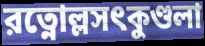
রত্নোল্লসৎকুণ্ডলা